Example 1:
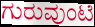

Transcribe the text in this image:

ಗುರುವುಂಟೆ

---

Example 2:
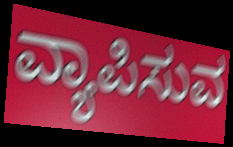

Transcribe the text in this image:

ವ್ಯಾಪಿಸುವ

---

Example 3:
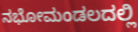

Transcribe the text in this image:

ನಭೋಮಂಡಲದಲ್ಲಿ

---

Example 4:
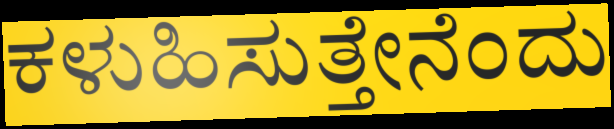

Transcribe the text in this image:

ಕಳುಹಿಸುತ್ತೇನೆಂದು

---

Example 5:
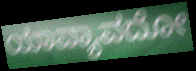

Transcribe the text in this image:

ಯಾವ್ಯಾವದೋ